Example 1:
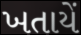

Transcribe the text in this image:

ખતાયેં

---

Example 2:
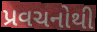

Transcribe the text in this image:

પ્રવચનોથી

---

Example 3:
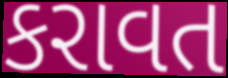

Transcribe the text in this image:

કરાવત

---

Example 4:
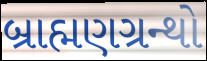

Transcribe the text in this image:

બ્રાહ્મણગ્રન્થો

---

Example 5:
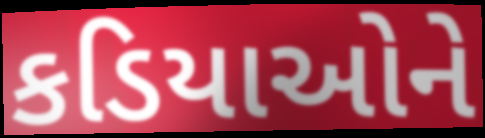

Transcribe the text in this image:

કડિયાઓને